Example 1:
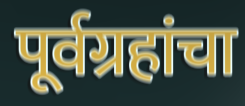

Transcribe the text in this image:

पूर्वग्रहांचा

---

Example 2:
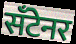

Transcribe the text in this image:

सँटेनर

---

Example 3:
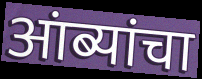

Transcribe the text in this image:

आंब्यांचा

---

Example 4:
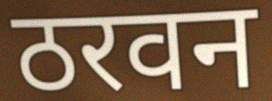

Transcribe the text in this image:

ठरवन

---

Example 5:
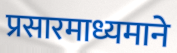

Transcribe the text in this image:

प्रसारमाध्यमाने